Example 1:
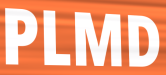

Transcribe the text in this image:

PLMD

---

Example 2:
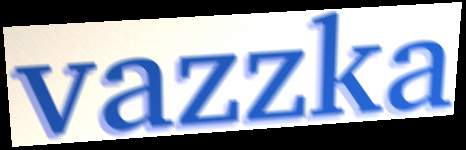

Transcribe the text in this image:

vazzka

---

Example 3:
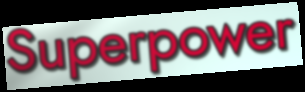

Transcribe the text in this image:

Superpower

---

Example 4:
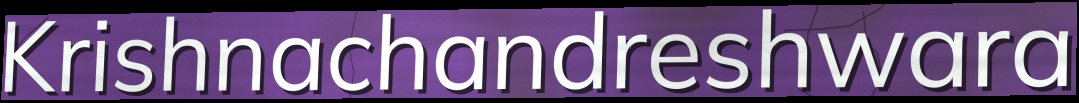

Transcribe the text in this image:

Krishnachandreshwara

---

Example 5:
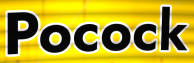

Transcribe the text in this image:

Pocock